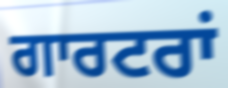
ਗਾਰਟਰਾਂ